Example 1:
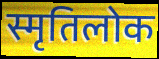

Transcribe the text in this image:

स्मृतिलोक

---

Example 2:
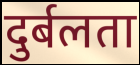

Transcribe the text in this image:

दुर्बलता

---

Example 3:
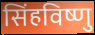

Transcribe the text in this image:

सिंहविष्णु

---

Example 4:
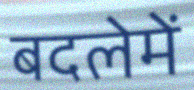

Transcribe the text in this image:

बदलेमें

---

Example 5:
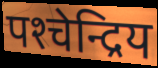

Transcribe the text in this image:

पश्चेन्द्रिय